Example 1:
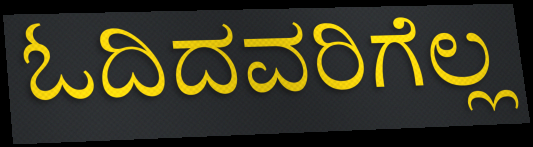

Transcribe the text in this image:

ಓದಿದವರಿಗೆಲ್ಲ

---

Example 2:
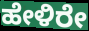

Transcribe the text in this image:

ಹೇಳಿರೇ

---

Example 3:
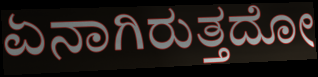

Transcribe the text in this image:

ಏನಾಗಿರುತ್ತದೋ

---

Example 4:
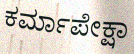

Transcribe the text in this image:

ಕರ್ಮಾಪೇಕ್ಷಾ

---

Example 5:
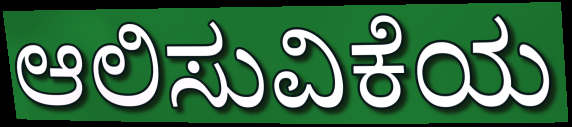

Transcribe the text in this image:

ಆಲಿಸುವಿಕೆಯ